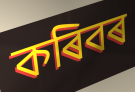
কৰিবৰ